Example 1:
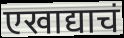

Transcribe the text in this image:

एखाद्याचं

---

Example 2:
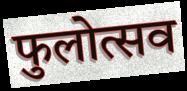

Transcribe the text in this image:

फुलोत्सव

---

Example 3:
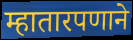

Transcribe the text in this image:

म्हातारपणाने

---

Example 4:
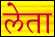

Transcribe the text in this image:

लेता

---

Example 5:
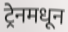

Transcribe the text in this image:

ट्रेनमधून